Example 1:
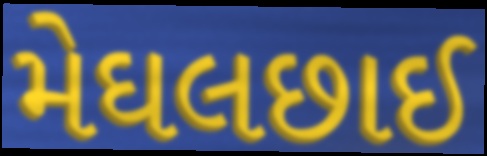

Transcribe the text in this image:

મેઘલછાઈ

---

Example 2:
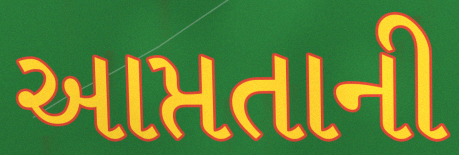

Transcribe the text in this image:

આપ્તતાની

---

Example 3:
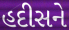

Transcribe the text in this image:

હદીસને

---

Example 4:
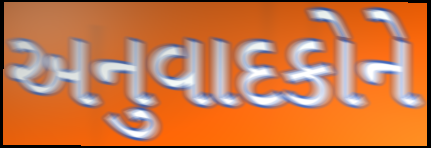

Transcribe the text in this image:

અનુવાદકોને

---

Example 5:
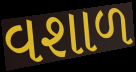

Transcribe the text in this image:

વશાળ